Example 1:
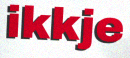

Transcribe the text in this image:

ikkje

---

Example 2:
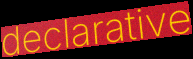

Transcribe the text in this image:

declarative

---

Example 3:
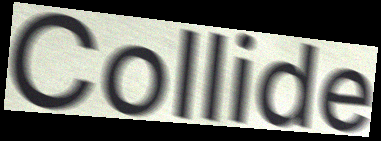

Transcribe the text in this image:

Collide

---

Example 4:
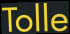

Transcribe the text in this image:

Tolle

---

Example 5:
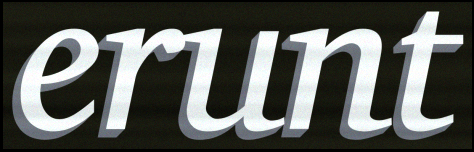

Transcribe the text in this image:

erunt